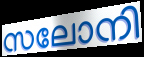
സലോനി